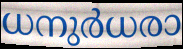
ധനുർധരാ